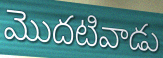
మొదటివాడు